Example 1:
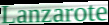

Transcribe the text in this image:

Lanzarote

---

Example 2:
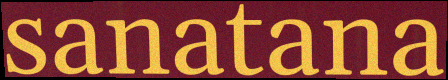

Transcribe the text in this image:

sanatana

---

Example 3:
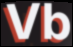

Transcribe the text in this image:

Vb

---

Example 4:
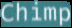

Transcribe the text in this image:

Chimp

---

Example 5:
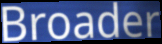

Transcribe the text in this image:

Broader